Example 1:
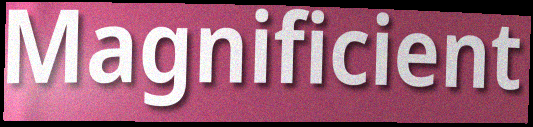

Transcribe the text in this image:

Magnificient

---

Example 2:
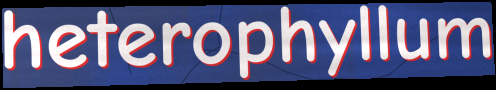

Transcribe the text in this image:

heterophyllum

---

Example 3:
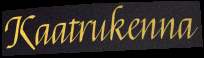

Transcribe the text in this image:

Kaatrukenna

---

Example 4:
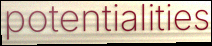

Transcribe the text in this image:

potentialities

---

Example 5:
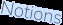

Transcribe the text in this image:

Notions